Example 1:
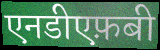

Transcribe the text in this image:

एनडीएफ़बी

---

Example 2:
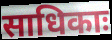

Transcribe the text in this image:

साधिकाः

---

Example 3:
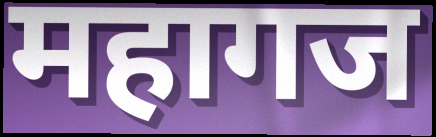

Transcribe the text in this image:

महागज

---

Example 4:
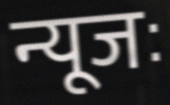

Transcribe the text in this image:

न्यूजः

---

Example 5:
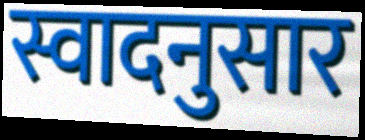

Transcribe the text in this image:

स्वादनुसार